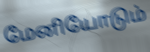
மேனியோடும்